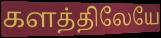
களத்திலேயே